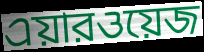
এয়ারওয়েজ